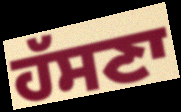
ਹੱਸਣਾ